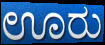
ಊರು